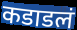
कडाडलं